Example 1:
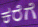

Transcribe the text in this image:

ಕರೆಗೆ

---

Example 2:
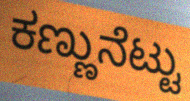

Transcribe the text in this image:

ಕಣ್ಣುನೆಟ್ಟು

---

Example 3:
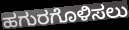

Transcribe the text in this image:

ಹಗುರಗೊಳಿಸಲು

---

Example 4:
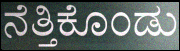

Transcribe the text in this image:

ನೆತ್ತಿಕೊಂಡು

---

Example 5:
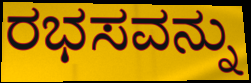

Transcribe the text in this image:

ರಭಸವನ್ನು